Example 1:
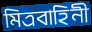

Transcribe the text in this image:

মিত্রবাহিনী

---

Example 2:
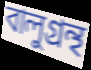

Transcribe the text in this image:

বালুগ্রন্থ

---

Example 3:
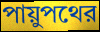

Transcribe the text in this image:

পায়ুপথের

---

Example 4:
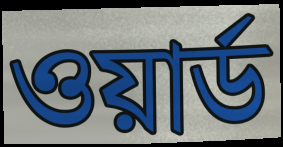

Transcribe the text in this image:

ওয়ার্ড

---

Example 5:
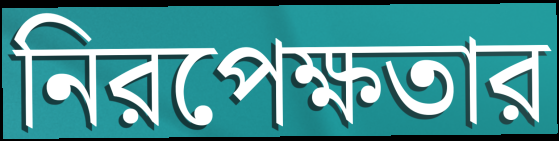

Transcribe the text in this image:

নিরপেক্ষতার